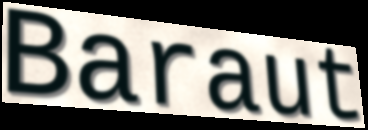
Baraut